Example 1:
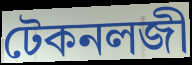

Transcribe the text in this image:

টেকনলজী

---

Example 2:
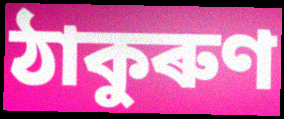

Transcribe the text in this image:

ঠাকুৰুণ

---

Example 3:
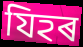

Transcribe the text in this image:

যিহৰ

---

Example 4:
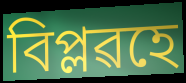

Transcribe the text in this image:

বিপ্লৱহে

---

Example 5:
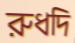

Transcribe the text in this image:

ৰুধদি